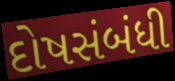
દોષસંબંધી